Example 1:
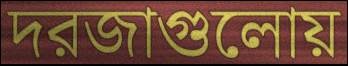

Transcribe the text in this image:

দরজাগুলোয়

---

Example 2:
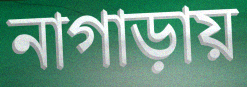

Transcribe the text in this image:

নাগাড়ায়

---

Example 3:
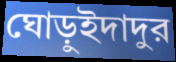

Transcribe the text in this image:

ঘোড়ুইদাদুর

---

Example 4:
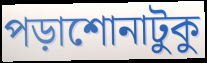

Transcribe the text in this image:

পড়াশোনাটুকু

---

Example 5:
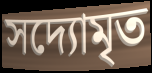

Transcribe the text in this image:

সদ্যোমৃত